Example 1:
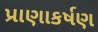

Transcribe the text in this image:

પ્રાણાકર્ષણ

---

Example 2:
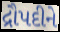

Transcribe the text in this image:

દ્રૌપદીને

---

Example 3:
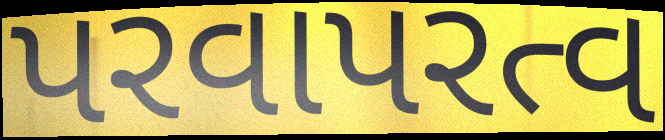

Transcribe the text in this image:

પરવાપરત્વ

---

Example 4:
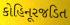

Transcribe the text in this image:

કોહિનૂરજડિત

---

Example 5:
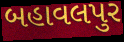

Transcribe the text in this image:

બહાવલપુર